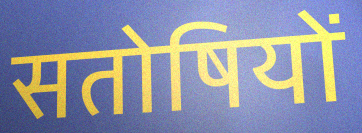
सतोषियों